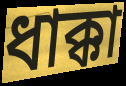
ধাক্কা